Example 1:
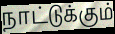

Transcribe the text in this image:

நாட்டுக்கும்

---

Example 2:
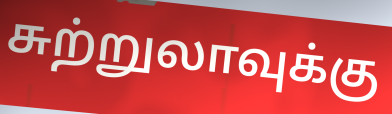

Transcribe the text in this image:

சுற்றுலாவுக்கு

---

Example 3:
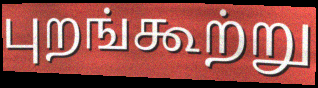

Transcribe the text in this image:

புறங்கூற்று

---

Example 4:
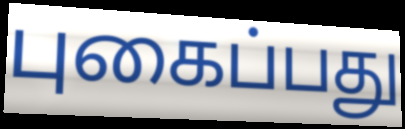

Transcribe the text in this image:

புகைப்பது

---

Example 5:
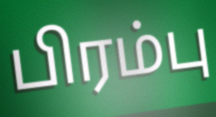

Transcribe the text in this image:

பிரம்பு